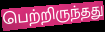
பெற்றிருந்தது